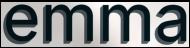
emma